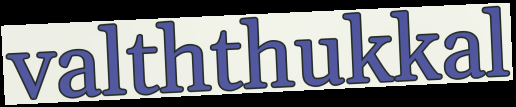
valththukkal